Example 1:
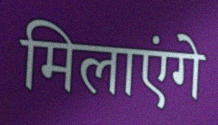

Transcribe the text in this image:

मिलाएंगे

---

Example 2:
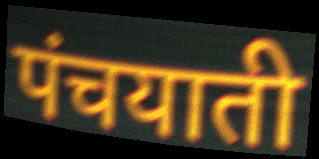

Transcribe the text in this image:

पंचयाती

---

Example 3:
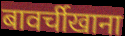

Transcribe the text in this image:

बावर्चीखाना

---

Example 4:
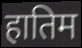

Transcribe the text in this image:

हातिम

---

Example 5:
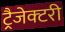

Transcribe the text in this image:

ट्रैजेक्‍टरी